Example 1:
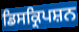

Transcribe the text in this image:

ਡਿਸਕ੍ਰਿਪਸ਼ਨ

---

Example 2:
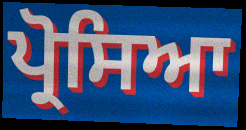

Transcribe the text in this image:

ਪ੍ਰੋਸਿਆ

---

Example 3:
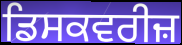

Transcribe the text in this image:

ਡਿਸਕਵਰੀਜ਼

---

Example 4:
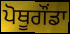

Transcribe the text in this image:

ਪੋਥੂਗੌਂਡਾ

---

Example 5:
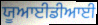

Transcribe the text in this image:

ਯੂਆਈਡੀਆਈ